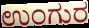
ಉಂಗುರ